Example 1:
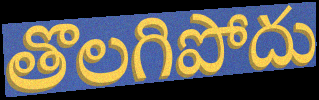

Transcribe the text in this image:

తొలగిపోదు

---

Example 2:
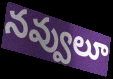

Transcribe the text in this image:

నవ్వులూ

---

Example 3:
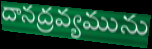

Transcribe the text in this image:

దానద్రవ్యమును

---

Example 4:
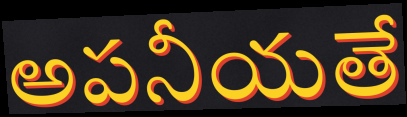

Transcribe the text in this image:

అపనీయతే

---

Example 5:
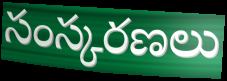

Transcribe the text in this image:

సంస్కరణలు